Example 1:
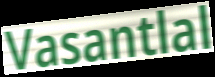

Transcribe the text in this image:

Vasantlal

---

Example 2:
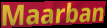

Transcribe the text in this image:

Maarban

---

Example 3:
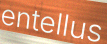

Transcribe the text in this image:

entellus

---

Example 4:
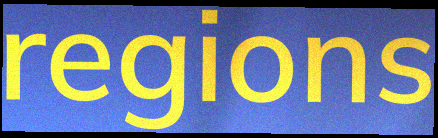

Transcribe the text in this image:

regions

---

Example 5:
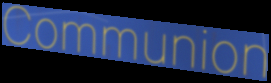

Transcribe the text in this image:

Communion